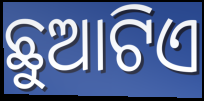
ଛୁଆଟିଏ